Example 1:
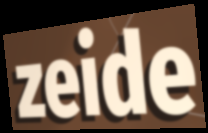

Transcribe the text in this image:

zeide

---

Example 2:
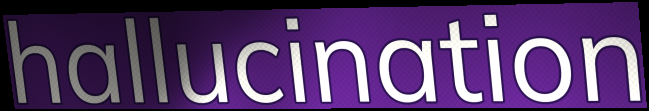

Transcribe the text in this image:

hallucination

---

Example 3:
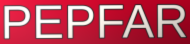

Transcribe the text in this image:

PEPFAR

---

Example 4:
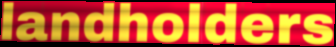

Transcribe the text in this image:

landholders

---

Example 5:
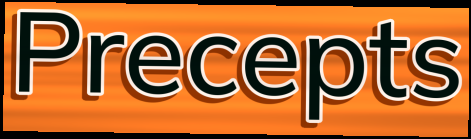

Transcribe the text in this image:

Precepts